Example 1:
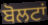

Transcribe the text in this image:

ਬੋਲਟਾਂ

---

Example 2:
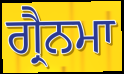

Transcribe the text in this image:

ਗ੍ਰੈਨਮਾ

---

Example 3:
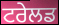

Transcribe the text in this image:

ਟਰੇਲਡ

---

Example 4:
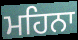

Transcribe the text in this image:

ਮਹਿਨਾ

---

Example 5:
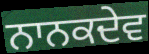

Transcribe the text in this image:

ਨਾਨਕਦੇਵ